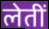
लेतीं